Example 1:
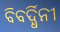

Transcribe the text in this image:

ବିବର୍ଦ୍ଧିନୀ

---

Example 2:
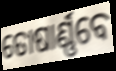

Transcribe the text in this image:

ତୋଷାର୍ଣ୍ଣବେ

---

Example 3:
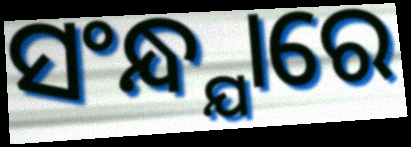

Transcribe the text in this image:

ସଂନ୍ଧ୍ଯାରେ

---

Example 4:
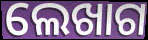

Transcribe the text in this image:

ଲେଖାଗ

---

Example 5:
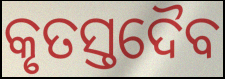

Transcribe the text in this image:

କୃତସ୍ତଦୈବ